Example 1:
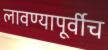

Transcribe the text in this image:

लावण्यापूर्वीच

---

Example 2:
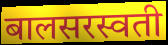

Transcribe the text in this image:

बालसरस्वती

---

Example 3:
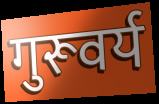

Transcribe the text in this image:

गुरूवर्य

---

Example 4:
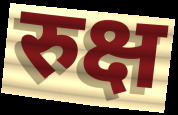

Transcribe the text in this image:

रुक्ष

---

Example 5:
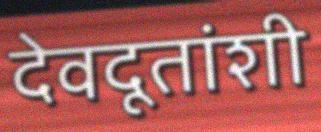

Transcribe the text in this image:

देवदूतांशी